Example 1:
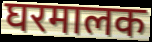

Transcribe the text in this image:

घरमालक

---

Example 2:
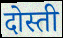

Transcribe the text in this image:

दोस्ती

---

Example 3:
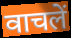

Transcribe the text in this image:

वाचलें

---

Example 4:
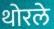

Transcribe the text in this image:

थोरले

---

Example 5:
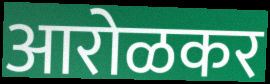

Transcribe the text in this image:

आरोळकर